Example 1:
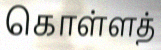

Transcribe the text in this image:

கொள்ளத்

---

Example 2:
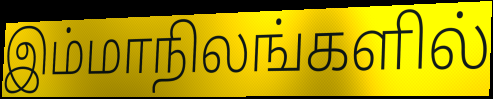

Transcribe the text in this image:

இம்மாநிலங்களில்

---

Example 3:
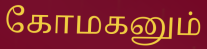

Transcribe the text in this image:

கோமகனும்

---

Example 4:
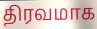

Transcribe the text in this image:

திரவமாக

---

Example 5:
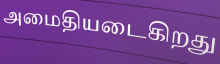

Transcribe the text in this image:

அமைதியடைகிறது